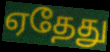
ஏதேது